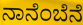
ನಾನೆಂಬೆನೆ